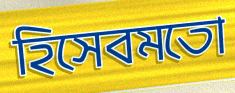
হিসেবমতো